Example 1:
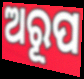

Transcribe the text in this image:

ଅରୂପ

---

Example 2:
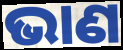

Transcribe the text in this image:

ଭାଣ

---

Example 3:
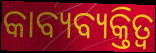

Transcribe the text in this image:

କାବ୍ୟବ୍ୟକ୍ତିତ୍ୱ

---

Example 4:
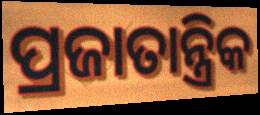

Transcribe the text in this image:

ପ୍ରଜାତାନ୍ତ୍ରିକ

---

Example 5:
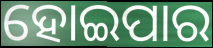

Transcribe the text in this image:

ହୋଇପାର